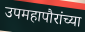
उपमहापौरांच्या